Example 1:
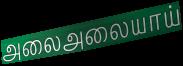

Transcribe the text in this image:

அலைஅலையாய்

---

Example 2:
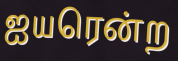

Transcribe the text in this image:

ஐயரென்ற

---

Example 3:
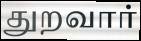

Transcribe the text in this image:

துறவார்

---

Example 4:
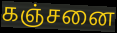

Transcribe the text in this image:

கஞ்சனை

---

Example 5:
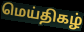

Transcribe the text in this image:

மெய்திகழ்